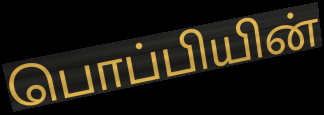
பொப்பியின்